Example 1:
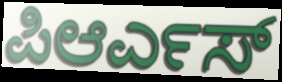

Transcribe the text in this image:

ಪಿಆರ್ಎಸ್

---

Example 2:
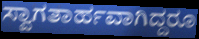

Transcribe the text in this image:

ಸ್ವಾಗತಾರ್ಹವಾಗಿದ್ದರೂ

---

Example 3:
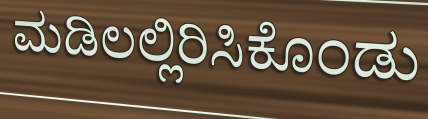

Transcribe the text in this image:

ಮಡಿಲಲ್ಲಿರಿಸಿಕೊಂಡು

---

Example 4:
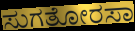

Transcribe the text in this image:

ಸುಗತೋರಸಾ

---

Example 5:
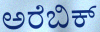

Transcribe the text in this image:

ಅರೆಬಿಕ್